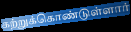
கற்றுக்கொண்டுள்ளார்